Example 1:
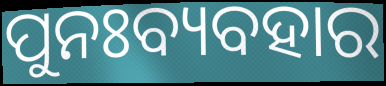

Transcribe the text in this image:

ପୁନଃବ୍ୟବହାର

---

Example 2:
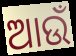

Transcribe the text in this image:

ଆଉଁ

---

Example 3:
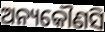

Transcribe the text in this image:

ଅନ୍ୟକୌଣସି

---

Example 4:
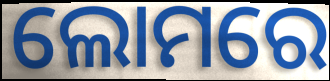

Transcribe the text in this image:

ଲୋମରେ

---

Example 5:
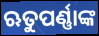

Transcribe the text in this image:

ଋତୁପର୍ଣ୍ଣାଙ୍କ